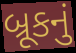
બ્રૂકનું